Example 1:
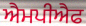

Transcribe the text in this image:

ਐਮਪੀਐਫ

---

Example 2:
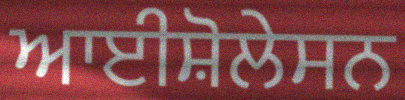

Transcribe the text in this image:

ਆਈਸ਼ੋਲੇਸਨ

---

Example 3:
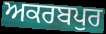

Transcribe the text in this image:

ਅਕਰਬਪੁਰ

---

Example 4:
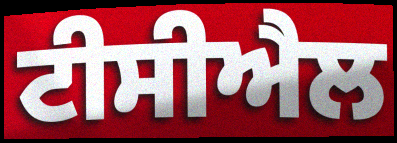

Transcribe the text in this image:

ਟੀਸੀਐਲ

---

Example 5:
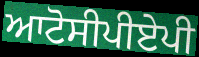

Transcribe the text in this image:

ਆਟੋਸੀਪੀਏਪੀ